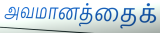
அவமானத்தைக்